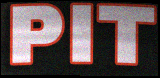
PIT